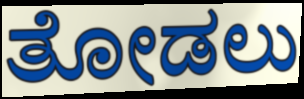
ತೋಡಲು